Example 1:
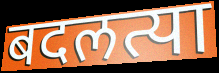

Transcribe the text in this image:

बदलत्या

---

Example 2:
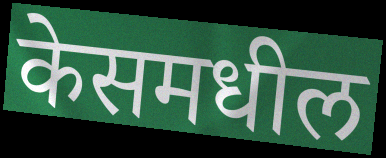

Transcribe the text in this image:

केसमधील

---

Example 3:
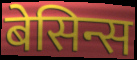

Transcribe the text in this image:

बेसिन्स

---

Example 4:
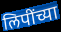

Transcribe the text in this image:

लिपींच्या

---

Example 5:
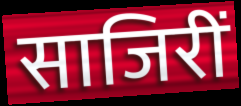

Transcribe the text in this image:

साजिरीं